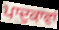
ਪਾਦੁਕਾਵਾਂ